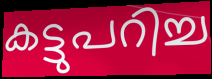
കട്ടുപറിച്ച